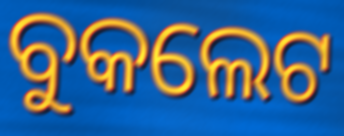
ବୁକଲେଟ